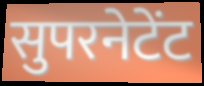
सुपरनेटेंट